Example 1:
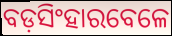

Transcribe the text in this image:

ବଡ଼ସିଂହାରବେଳେ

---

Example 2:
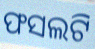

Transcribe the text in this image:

ଫସଲଟି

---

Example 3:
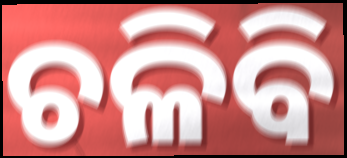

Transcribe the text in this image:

ଚଳିବି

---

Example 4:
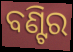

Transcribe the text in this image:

ବଣ୍ଟିର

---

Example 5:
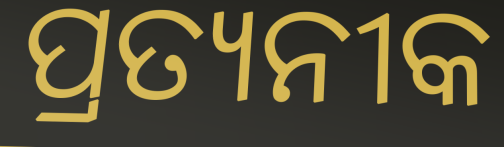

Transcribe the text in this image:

ପ୍ରତ୍ୟନୀକ